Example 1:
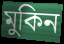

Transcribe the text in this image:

মুকিন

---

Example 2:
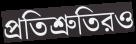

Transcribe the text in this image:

প্রতিশ্রুতিরও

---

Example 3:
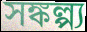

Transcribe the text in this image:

সঙ্কল্প্য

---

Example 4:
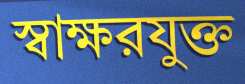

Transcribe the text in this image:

স্বাক্ষরযুক্ত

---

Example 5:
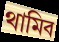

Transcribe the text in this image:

থামিব